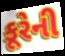
કૂરેની